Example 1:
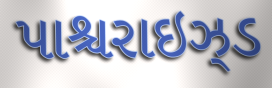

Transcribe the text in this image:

પાશ્ચરાઇઝ્ડ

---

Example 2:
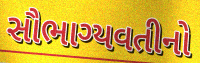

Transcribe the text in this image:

સૌભાગ્યવતીનો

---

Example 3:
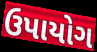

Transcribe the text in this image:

ઉપાયોગ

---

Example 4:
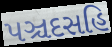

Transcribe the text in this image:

પઞ્ચદસહિ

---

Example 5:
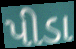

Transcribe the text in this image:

પીડા